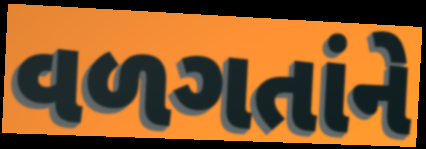
વળગતાંને